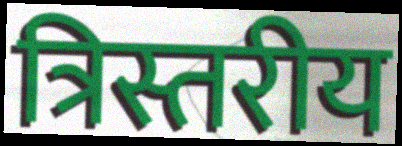
त्रिस्तरीय